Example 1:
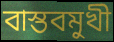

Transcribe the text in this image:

বাস্তবমুখী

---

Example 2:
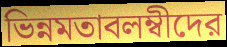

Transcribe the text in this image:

ভিন্নমতাবলম্বীদের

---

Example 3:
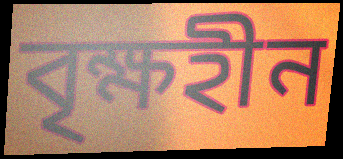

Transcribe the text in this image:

বৃক্ষহীন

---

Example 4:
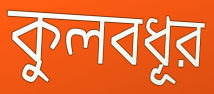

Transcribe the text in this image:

কুলবধূর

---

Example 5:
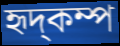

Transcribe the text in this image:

হৃদ্কম্প